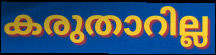
കരുതാറില്ല